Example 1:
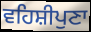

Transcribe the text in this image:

ਵਹਿਸ਼ੀਪੁਣਾ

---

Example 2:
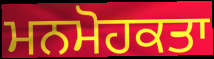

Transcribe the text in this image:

ਮਨਮੋਹਕਤਾ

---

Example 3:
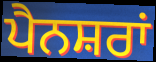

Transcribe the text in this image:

ਪੈਨਸ਼ਰਾਂ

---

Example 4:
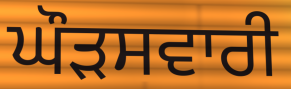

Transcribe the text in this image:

ਘੌੜਸਵਾਰੀ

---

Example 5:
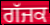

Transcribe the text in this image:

ਗੱਜਕ